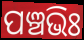
ପଞ୍ଚଭିଃ